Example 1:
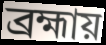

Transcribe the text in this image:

ব্রহ্মায়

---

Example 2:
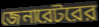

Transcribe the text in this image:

জেনারেটরের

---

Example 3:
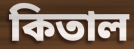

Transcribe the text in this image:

কিতাল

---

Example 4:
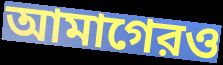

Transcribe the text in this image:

আমাগেরও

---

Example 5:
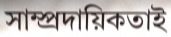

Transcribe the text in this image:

সাম্প্রদায়িকতাই